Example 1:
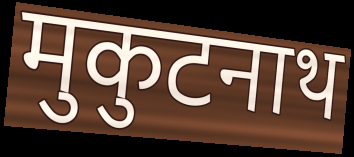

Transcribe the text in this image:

मुकुटनाथ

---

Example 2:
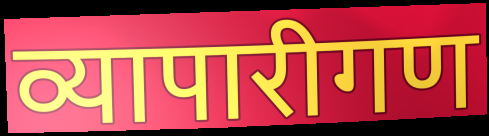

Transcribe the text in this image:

व्यापारीगण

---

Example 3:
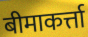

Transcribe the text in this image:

बीमाकर्त्ता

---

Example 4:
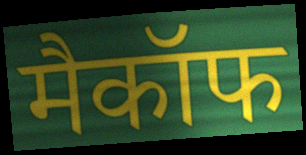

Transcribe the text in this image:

मैकॉफ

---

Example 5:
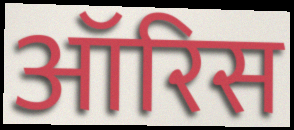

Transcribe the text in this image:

ऑरिस